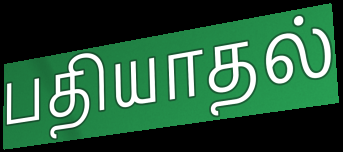
பதியாதல்